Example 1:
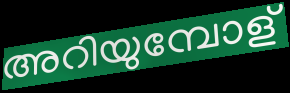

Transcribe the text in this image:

അറിയുമ്പോള്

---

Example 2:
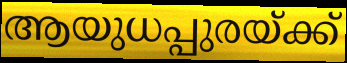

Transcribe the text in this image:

ആയുധപ്പുരയ്ക്ക്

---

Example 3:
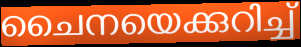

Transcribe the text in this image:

ചൈനയെക്കുറിച്ച്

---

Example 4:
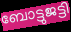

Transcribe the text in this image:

ബോട്ടുജട്ടി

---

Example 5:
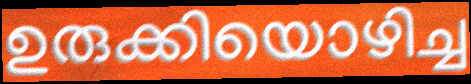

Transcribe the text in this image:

ഉരുക്കിയൊഴിച്ച